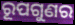
ରୂପଗୁଣର